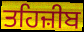
ਤਹਿਜ਼ੀਬ